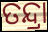
ତନ୍ଦ୍ରା